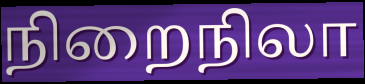
நிறைநிலா